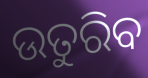
ଉତୁରିବ